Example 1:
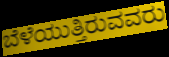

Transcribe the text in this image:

ಬೆಳೆಯುತ್ತಿರುವವರು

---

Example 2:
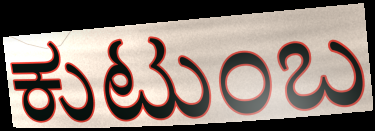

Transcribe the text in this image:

ಕುಟುಂಬ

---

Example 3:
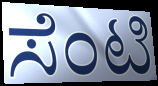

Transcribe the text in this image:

ಸೆಂಟಿ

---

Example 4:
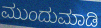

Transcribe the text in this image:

ಮುಂದುಮಾಡಿ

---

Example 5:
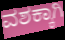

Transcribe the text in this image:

ವಶಕ್ಕಾಗಿ